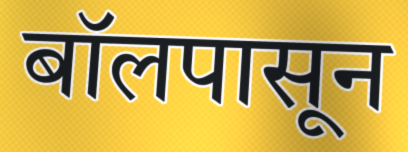
बॉलपासून